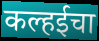
कल्हईचा